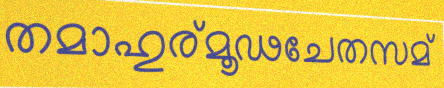
തമാഹുര്മൂഢചേതസമ്